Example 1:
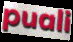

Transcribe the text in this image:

puali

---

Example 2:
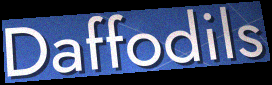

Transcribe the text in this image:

Daffodils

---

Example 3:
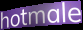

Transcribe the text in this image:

hotmale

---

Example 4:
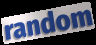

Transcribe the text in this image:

random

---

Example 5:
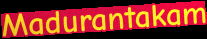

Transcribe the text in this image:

Madurantakam